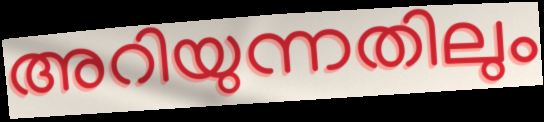
അറിയുന്നതിലും